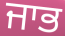
ਜਾਭ